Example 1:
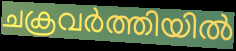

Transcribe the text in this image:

ചക്രവർത്തിയിൽ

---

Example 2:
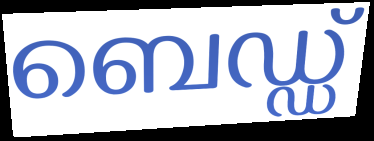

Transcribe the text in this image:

ബെഡ്ഡ്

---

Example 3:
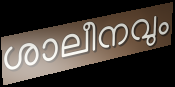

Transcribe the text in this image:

ശാലീനവും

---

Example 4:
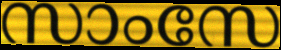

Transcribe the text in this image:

സാംസേ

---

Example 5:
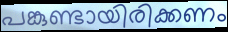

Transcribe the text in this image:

പങ്കുണ്ടായിരിക്കണം